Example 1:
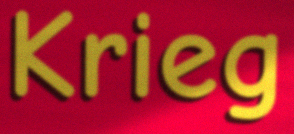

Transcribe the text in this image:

Krieg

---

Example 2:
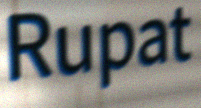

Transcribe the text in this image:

Rupat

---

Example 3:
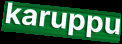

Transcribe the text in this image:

karuppu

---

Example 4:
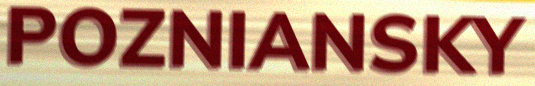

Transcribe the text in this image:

POZNIANSKY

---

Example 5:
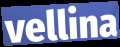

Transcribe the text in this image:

vellina